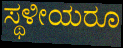
ಸ್ಥಳೀಯರೂ